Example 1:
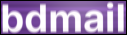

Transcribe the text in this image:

bdmail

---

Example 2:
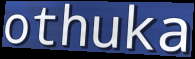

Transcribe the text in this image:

othuka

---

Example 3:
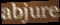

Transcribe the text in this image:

abjure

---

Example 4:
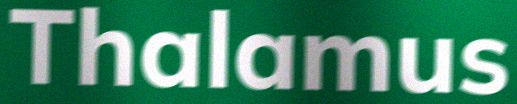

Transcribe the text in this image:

Thalamus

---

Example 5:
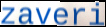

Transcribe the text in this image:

zaveri